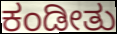
ಕಂಡೀತು